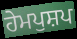
ਹੇਮਪੁਸ਼ਪ